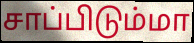
சாப்பிடும்மா